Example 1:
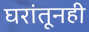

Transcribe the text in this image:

घरांतूनही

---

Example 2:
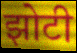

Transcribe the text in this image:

झोटी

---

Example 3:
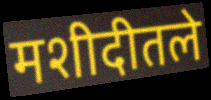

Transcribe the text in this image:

मशीदीतले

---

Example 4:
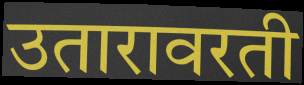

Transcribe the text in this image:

उतारावरती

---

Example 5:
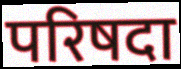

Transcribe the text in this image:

परिषदा